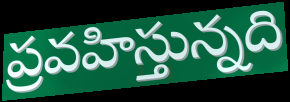
ప్రవహిస్తున్నది